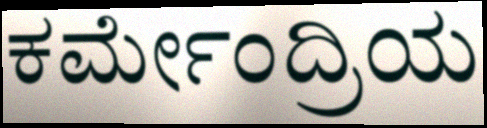
ಕರ್ಮೇಂದ್ರಿಯ